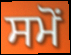
ਸਮੋਂ